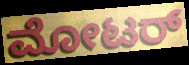
ಮೋಟರ್